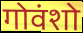
गोवंशो